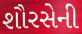
શૌરસેની